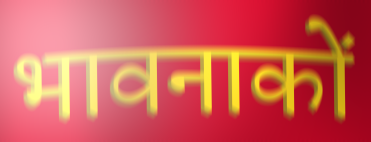
भावनाकों